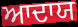
ਆਦਾਯ